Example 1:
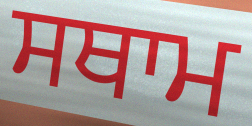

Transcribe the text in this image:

ਸਥਾਮ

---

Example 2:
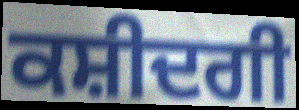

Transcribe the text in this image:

ਕਸ਼ੀਦਗੀ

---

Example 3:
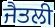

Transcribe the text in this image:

ਜੈਤਲੀ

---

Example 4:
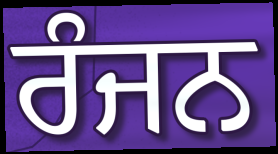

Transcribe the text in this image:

ਰੰਜਨ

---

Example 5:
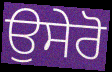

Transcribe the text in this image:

ਉਸੇਰੋ